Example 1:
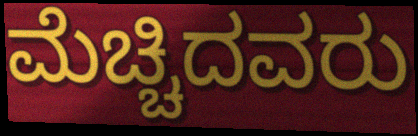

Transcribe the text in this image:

ಮೆಚ್ಚಿದವರು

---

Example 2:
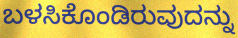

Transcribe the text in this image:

ಬಳಸಿಕೊಂಡಿರುವುದನ್ನು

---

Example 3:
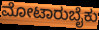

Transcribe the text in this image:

ಮೋಟಾರುಬೈಕು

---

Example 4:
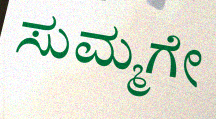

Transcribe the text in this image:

ಸುಮ್ಮಗೇ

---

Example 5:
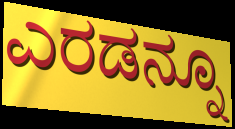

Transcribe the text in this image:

ಎರಡನ್ನೂ